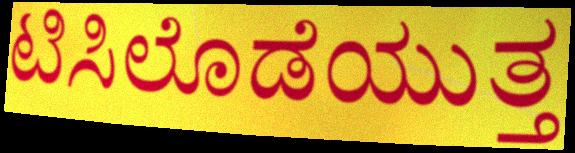
ಟಿಸಿಲೊಡೆಯುತ್ತ